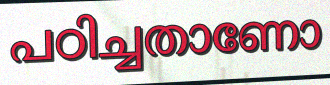
പഠിച്ചതാണോ